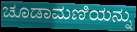
ಚೂಡಾಮಣಿಯನ್ನು